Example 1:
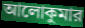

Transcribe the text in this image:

আলোকুমার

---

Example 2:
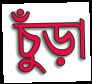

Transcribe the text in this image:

চুঁড়া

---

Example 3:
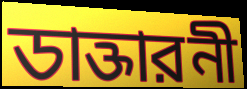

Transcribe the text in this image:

ডাক্তারনী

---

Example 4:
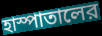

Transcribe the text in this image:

হাস্পাতালের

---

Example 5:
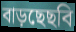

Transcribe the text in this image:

বাড়ছেছবি